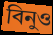
বিনুও